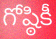
గోష్ఠికీ